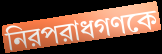
নিরপরাধগণকে